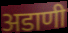
अडाणी